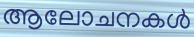
ആലോചനകൾ